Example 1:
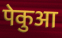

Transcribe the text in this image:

पेकुआ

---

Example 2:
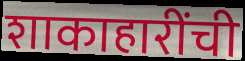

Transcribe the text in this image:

शाकाहारींची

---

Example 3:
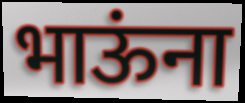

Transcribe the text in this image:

भाऊंना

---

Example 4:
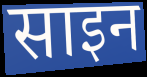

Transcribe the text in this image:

साइन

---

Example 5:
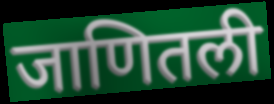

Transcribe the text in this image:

जाणितली